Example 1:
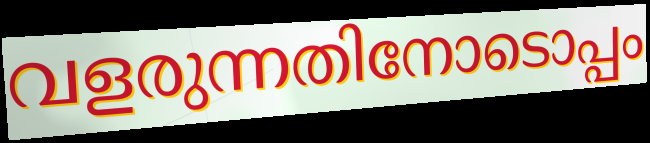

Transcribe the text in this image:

വളരുന്നതിനോടൊപ്പം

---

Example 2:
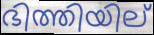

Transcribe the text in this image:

ഭിത്തിയില്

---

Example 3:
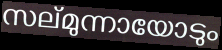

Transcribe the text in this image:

സല്മുന്നായോടും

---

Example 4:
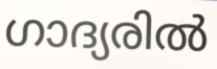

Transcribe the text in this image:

ഗാദ്യരിൽ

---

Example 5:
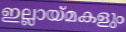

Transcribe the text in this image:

ഇല്ലായ്മകളും